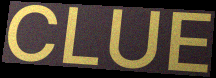
CLUE